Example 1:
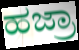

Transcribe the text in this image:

ಹಜ್ರಾ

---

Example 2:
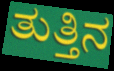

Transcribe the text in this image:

ತುತ್ತಿನ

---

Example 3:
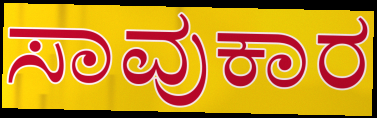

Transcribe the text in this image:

ಸಾವುಕಾರ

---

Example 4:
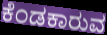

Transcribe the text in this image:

ಕೆಂಡಕಾರುವ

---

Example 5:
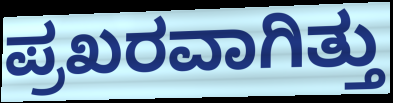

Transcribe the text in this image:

ಪ್ರಖರವಾಗಿತ್ತು